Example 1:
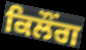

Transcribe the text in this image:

ਕਿਲੌਂਗ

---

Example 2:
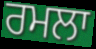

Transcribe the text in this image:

ਰਮਲਾ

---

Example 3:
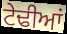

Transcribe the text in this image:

ਟੇਢੀਆਂ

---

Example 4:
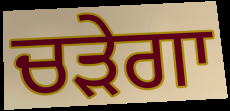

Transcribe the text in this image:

ਚੜੇਗਾ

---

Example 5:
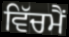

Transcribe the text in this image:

ਵਿੱਚਮੈਂ